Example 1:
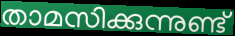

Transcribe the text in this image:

താമസിക്കുന്നുണ്ട്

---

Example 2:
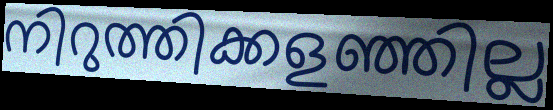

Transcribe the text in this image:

നിറുത്തിക്കളഞ്ഞില്ല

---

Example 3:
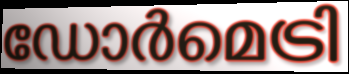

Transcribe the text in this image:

ഡോർമെട്രി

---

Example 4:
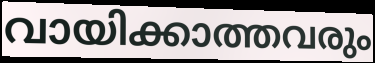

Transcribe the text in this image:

വായിക്കാത്തവരും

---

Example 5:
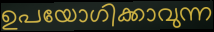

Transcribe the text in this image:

ഉപയോഗിക്കാവുന്ന